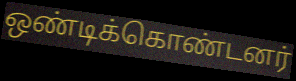
ஒண்டிக்கொண்டனர்